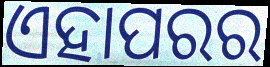
ଏହାପରର